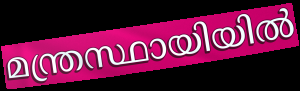
മന്ത്രസ്ഥായിയിൽ